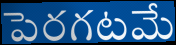
పెరగటమే